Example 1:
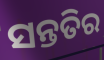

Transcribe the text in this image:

ସନ୍ତତିର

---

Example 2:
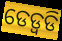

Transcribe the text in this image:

ଡେଡ୍ବଡି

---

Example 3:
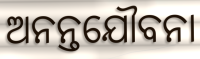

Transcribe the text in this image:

ଅନନ୍ତଯୌବନା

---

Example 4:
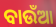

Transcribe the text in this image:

ବାଉଁଆ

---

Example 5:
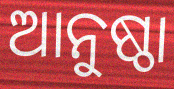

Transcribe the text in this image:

ଆନୁଷ୍ଠା